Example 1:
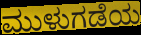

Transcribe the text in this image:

ಮುಳುಗಡೆಯ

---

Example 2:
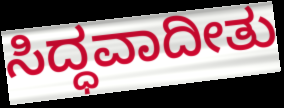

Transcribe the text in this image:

ಸಿದ್ಧವಾದೀತು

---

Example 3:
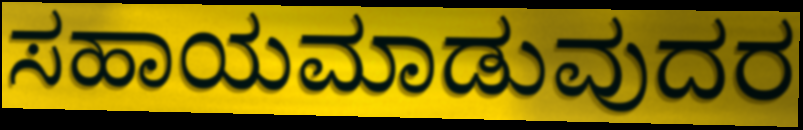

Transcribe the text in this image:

ಸಹಾಯಮಾಡುವುದರ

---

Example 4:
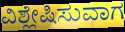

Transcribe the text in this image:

ವಿಶ್ಲೇಷಿಸುವಾಗ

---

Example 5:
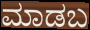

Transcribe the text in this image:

ಮಾಡಬ